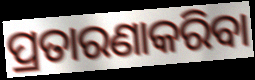
ପ୍ରତାରଣାକରିବା